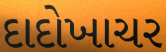
દાદોખાચર